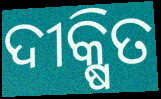
ଦୀକ୍ଷିତ